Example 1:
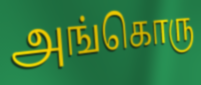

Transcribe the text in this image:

அங்கொரு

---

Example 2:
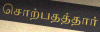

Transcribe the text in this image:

சொற்பதத்தார்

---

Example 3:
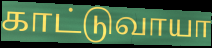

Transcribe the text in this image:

காட்டுவாயா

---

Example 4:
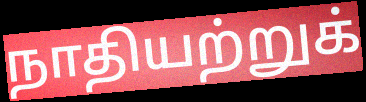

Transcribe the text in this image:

நாதியற்றுக்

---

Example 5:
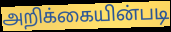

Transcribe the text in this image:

அறிக்கையின்படி